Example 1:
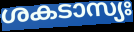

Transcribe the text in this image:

ശകടാസ്യഃ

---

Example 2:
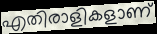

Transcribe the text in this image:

എതിരാളികളാണ്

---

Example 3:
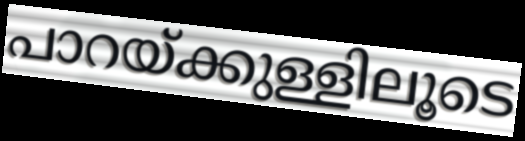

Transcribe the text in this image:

പാറയ്ക്കുള്ളിലൂടെ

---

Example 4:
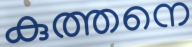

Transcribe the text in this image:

കുത്തനെ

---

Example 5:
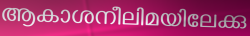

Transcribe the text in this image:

ആകാശനീലിമയിലേക്കു